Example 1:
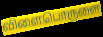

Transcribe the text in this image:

விளைபொருளை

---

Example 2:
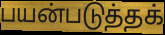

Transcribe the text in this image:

பயன்படுத்தக்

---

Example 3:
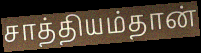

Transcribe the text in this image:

சாத்தியம்தான்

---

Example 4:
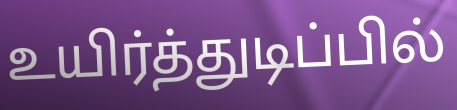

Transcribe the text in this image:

உயிர்த்துடிப்பில்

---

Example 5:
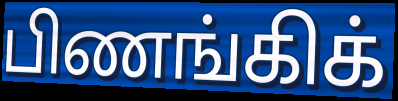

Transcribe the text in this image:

பிணங்கிக்